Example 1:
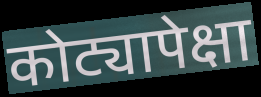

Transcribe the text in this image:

कोट्यापेक्षा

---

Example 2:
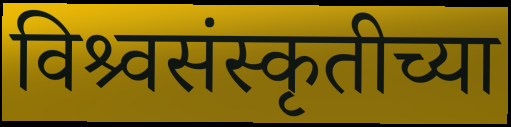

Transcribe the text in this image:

विश्र्वसंस्कृतीच्या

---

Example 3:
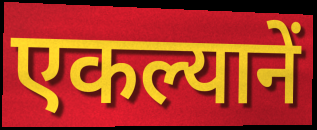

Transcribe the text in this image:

एकल्यानें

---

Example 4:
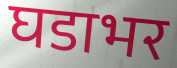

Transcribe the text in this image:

घडाभर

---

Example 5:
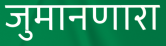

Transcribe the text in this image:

जुमानणारा